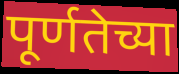
पूर्णतेच्या